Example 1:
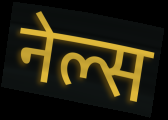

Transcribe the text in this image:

नेल्स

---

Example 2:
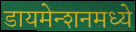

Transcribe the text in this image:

डायमेन्शनमध्ये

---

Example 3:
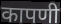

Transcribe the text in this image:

कापणी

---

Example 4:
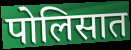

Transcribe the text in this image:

पोलिसात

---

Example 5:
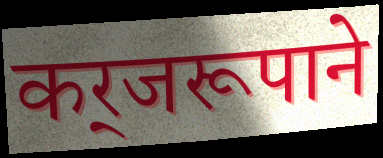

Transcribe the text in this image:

कर्जरूपाने